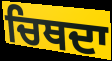
ਚਿਥਦਾ